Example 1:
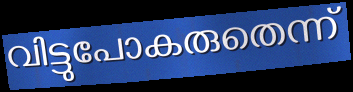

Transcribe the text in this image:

വിട്ടുപോകരുതെന്ന്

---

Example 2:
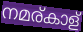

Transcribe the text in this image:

നമര്കാള്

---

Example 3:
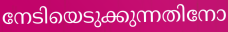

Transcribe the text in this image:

നേടിയെടുക്കുന്നതിനോ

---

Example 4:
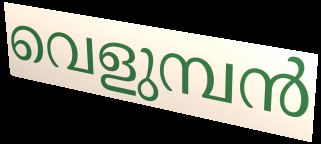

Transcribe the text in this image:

വെളുമ്പൻ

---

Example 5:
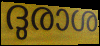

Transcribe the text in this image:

ദുരാശ